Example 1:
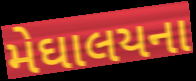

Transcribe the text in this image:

મેઘાલયના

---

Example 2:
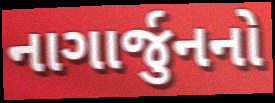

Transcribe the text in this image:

નાગાર્જુનનો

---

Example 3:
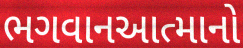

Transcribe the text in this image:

ભગવાનઆત્માનો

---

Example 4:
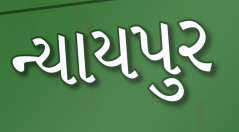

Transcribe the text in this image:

ન્યાયપુર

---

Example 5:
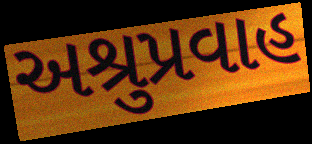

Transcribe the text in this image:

અશ્રુપ્રવાહ